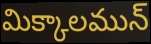
మిక్కాలమున్